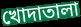
খোদাতালা